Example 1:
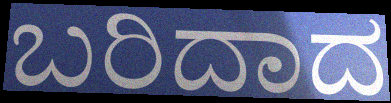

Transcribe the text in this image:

ಬರಿದಾದ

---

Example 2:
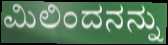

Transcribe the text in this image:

ಮಿಲಿಂದನನ್ನು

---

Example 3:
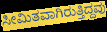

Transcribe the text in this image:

ಸೀಮಿತವಾಗಿರುತ್ತಿದ್ದವು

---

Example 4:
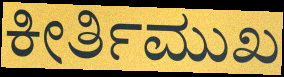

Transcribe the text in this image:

ಕೀರ್ತಿಮುಖ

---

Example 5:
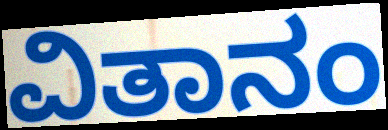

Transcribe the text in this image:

ವಿತಾನಂ